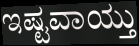
ಇಷ್ಟವಾಯ್ತು